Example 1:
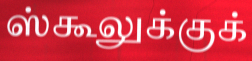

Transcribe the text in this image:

ஸ்கூலுக்குக்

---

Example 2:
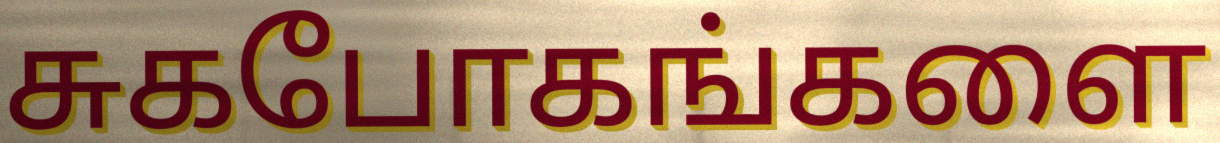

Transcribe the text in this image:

சுகபோகங்களை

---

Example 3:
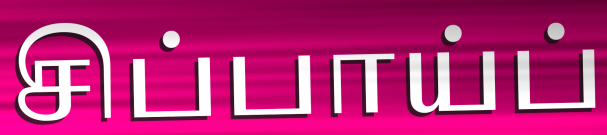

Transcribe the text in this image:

சிப்பாய்ப்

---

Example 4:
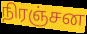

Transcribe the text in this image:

நிரஞ்சன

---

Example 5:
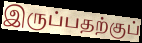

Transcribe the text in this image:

இருப்பதற்குப்